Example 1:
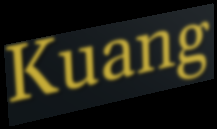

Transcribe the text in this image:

Kuang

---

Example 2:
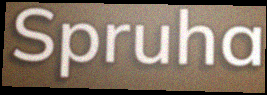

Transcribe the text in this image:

Spruha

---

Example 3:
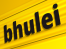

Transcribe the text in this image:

bhulei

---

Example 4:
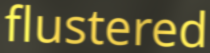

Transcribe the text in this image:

flustered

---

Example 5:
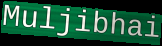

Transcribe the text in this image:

Muljibhai